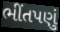
ભીંતપણું